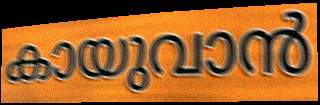
കായുവാൻ